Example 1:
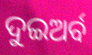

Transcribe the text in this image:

ଦୁଇଅର୍ବ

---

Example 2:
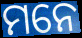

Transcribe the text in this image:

ମନେ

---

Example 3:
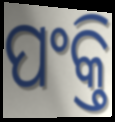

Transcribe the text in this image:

ପଂକ୍ତି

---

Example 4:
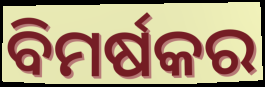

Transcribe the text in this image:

ବିମର୍ଷକର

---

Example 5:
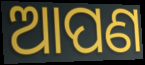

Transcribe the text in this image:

ଆପଣ